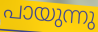
പായുന്നു